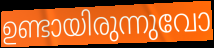
ഉണ്ടായിരുന്നുവോ